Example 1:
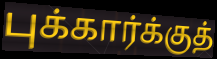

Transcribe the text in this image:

புக்கார்க்குத்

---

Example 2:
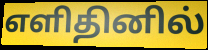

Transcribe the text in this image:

எளிதினில்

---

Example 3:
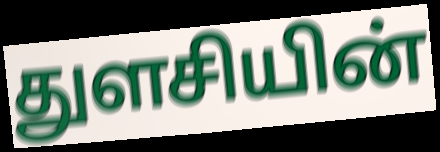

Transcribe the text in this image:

துளசியின்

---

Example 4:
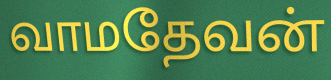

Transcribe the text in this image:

வாமதேவன்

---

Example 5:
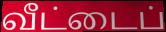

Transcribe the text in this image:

வீட்டைப்